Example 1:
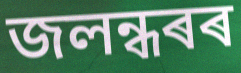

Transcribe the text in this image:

জলন্ধৰৰ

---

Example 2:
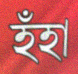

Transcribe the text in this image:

হঁহা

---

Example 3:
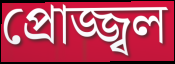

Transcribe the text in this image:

প্ৰোজ্জ্বল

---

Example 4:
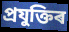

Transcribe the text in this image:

প্ৰযুক্তিৰ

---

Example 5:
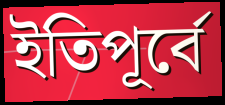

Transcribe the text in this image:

ইতিপূৰ্বে